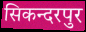
सिकन्दरपुर